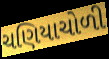
ચણિયાચોળી